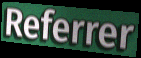
Referrer